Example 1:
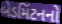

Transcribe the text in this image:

બેડમિંટનનો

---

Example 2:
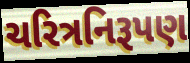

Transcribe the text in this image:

ચરિત્રનિરૂપણ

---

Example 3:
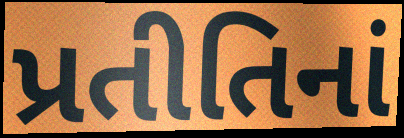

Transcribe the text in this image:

પ્રતીતિનાં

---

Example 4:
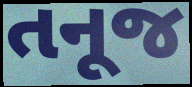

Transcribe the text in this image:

તનૂજ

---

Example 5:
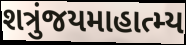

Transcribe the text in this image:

શત્રુંજયમાહાત્મ્ય